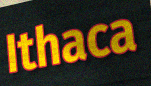
Ithaca